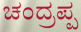
ಚಂದ್ರಪ್ಪ